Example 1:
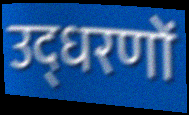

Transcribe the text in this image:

उद्धरणों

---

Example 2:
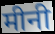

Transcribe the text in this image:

मीनी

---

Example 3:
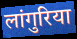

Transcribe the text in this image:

लांगुरिया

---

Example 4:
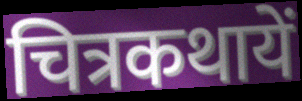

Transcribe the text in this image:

चित्रकथायें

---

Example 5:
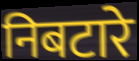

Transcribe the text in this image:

निबटारे